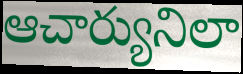
ఆచార్యునిలా